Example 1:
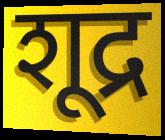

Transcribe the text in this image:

शूद्र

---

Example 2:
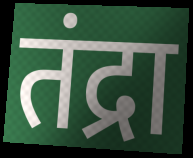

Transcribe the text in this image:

तंद्रा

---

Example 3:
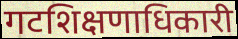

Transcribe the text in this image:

गटशिक्षणाधिकारी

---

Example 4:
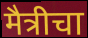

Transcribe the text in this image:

मैत्रीचा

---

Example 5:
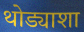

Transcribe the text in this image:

थोड्याशा